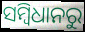
ସମ୍ବିଧାନରୁ